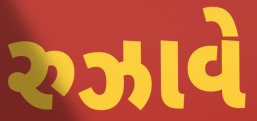
રુઝાવે